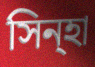
সিন্হা